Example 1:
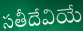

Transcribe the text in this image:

సతీదేవియే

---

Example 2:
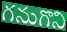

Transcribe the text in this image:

గనుగొని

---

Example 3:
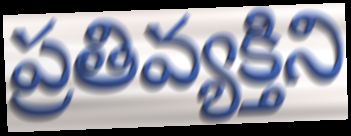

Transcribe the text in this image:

ప్రతివ్యక్తిని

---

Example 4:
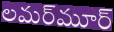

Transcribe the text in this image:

లమర్‌మూర్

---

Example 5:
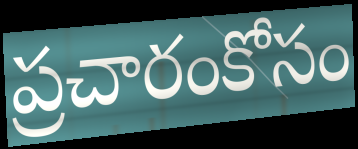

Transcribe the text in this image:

ప్రచారంకోసం